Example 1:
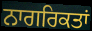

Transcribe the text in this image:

ਨਾਗਰਿਕਤਾਂ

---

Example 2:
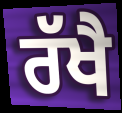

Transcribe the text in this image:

ਰੱਖੈ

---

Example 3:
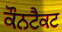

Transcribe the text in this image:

ਕੌਨਟੈਕਟ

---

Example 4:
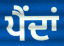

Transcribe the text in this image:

ਪੈਂਦਾਂ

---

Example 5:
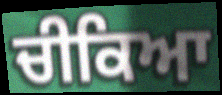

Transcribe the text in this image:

ਚੀਕਿਆ